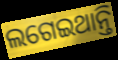
ଲଗେଇଥାନ୍ତି